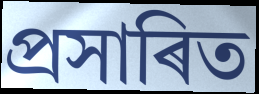
প্ৰসাৰিত